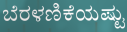
ಬೆರಳಣಿಕೆಯಷ್ಟು